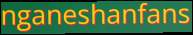
nganeshanfans